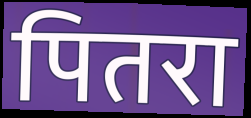
पितरा